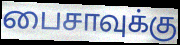
பைசாவுக்கு